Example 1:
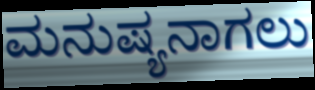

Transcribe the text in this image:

ಮನುಷ್ಯನಾಗಲು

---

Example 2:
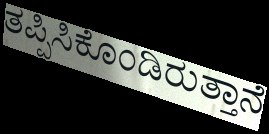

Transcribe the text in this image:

ತಪ್ಪಿಸಿಕೊಂಡಿರುತ್ತಾನೆ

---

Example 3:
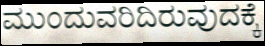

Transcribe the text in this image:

ಮುಂದುವರಿದಿರುವುದಕ್ಕೆ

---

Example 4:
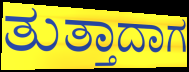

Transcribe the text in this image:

ತುತ್ತಾದಾಗ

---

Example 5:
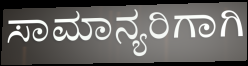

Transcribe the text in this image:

ಸಾಮಾನ್ಯರಿಗಾಗಿ